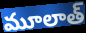
మూలాత్